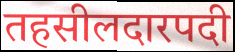
तहसीलदारपदी